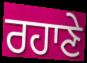
ਰਹਾਣੇ